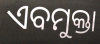
ଏବମୁକ୍ତା